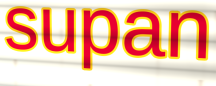
supan